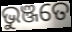
ଭୁଞ୍ଜତେ